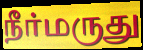
நீர்மருது